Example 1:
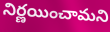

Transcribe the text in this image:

నిర్ణయించామని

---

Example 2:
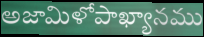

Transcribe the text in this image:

అజామిళోపాఖ్యానము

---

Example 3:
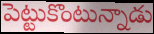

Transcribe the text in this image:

పెట్టుకొంటున్నాడు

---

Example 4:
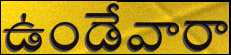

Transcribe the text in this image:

ఉండేవారా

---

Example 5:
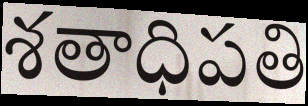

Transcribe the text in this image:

శతాధిపతి